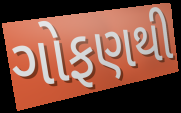
ગોફણથી